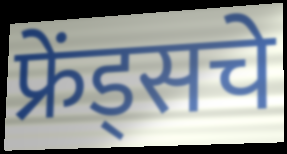
फ्रेंड्सचे